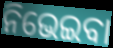
ନିଭେଇବା